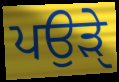
ਪਉੜੑੇ